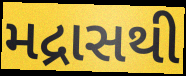
મદ્રાસથી